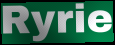
Ryrie